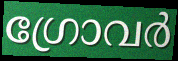
ഗ്രോവർ